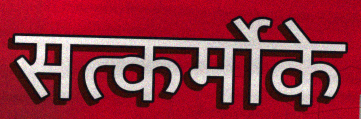
सत्कर्मोके